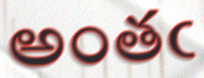
అంతఁ